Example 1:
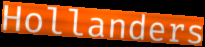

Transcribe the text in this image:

Hollanders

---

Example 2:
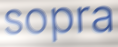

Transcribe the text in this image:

sopra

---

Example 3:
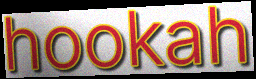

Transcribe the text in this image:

hookah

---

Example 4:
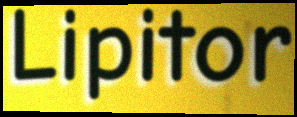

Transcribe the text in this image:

Lipitor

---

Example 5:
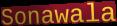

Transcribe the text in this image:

Sonawala